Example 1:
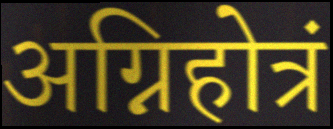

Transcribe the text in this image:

अग्निहोत्रं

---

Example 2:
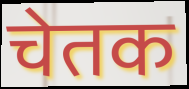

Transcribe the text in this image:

चेतक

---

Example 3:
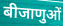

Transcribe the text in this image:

बीजाणुओं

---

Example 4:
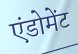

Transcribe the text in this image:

एंडोमेंट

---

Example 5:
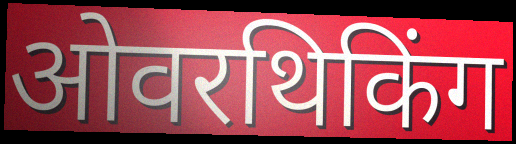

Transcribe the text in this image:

ओवरथिकिंग